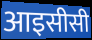
आइसीसी